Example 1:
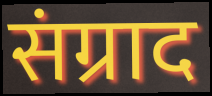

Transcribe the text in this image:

संग्राद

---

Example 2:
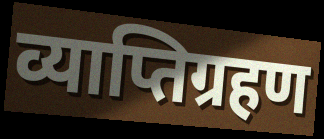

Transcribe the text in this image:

व्याप्तिग्रहण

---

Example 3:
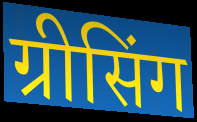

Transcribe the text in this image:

ग्रीसिंग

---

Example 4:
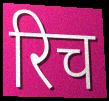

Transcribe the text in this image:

रिच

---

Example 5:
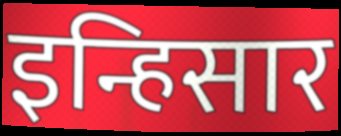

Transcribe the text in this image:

इन्हिसार